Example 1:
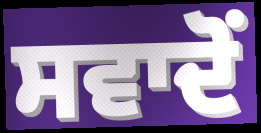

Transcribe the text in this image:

ਸਵਾਦੋਂ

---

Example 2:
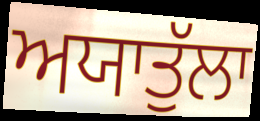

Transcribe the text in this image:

ਅਯਾਤੁੱਲਾ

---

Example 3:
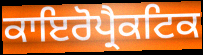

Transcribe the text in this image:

ਕਾਇਰੋਪ੍ਰੈਕਟਿਕ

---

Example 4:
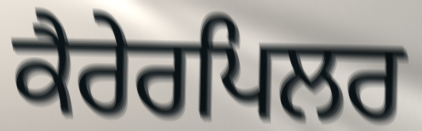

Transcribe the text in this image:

ਕੈਰੇਰਪਿਲਰ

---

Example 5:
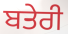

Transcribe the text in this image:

ਬਤੇਰੀ